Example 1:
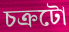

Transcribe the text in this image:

চক্ৰটো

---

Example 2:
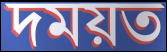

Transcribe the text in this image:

দময়ত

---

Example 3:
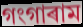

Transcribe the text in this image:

গংগাৰাম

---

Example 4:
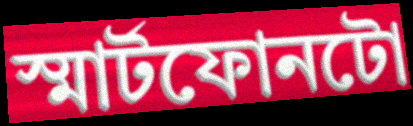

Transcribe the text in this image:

স্মাৰ্টফোনটো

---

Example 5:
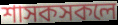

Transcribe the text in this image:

শাসকসকলে